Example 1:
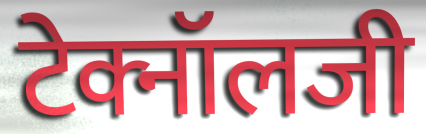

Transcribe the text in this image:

टेक्‍नॉलजी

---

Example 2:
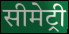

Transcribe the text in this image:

सीमेट्री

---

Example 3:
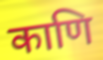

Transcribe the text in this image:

काणि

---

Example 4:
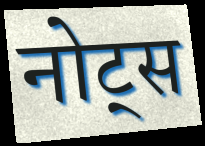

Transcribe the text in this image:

नोट्‌स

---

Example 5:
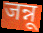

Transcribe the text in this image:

जन्नू